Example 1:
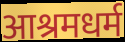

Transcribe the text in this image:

आश्रमधर्म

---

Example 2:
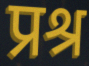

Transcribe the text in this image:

प्रश्र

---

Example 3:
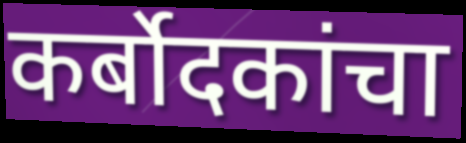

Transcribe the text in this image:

कर्बोदकांचा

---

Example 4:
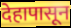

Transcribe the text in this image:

देहापासून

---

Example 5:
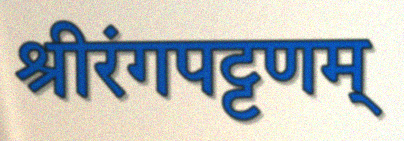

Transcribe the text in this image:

श्रीरंगपट्टणम्